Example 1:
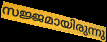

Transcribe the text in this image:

സജ്ജമായിരുന്നു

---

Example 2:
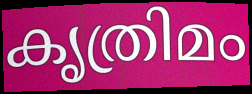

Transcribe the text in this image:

കൃത്രിമം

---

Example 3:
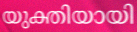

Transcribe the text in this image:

യുക്തിയായി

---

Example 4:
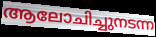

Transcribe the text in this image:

ആലോചിച്ചുനടന്ന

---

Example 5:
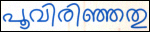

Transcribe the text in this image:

പൂവിരിഞ്ഞതു